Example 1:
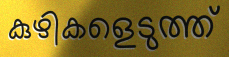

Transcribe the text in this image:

കുഴികളെടുത്ത്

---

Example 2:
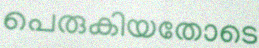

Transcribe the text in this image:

പെരുകിയതോടെ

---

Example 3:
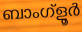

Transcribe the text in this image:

ബാംഗ്ളൂർ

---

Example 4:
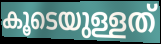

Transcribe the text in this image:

കൂടെയുള്ളത്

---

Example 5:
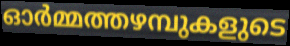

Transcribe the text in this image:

ഓർമ്മത്തഴമ്പുകളുടെ